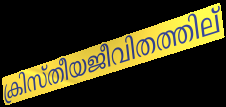
ക്രിസ്തീയജീവിതത്തില്